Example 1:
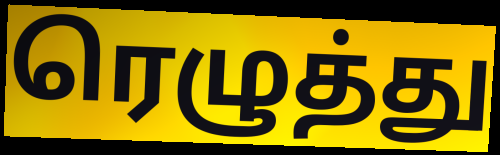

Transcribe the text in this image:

ரெழுத்து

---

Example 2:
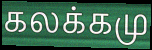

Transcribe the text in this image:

கலக்கமு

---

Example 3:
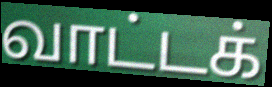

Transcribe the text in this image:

வாட்டக்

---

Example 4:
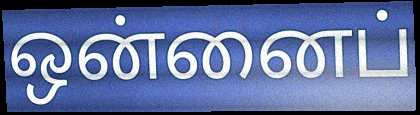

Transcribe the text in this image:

ஒன்னைப்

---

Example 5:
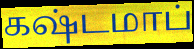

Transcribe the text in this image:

கஷ்டமாப்